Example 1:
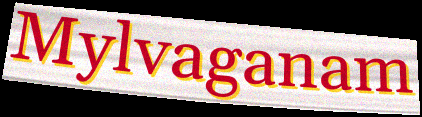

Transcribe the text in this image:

Mylvaganam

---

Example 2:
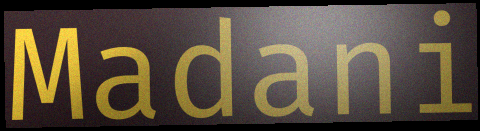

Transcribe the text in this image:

Madani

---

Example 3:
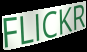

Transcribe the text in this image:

FLICKR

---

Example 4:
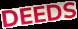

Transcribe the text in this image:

DEEDS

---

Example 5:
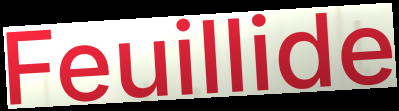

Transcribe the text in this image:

Feuillide